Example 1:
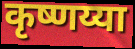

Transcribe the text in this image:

कृष्णय्या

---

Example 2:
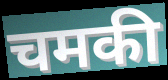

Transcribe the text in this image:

चमकी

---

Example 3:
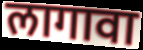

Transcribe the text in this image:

लागावा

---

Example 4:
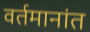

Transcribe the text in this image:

वर्तमानांत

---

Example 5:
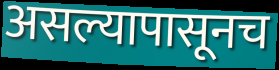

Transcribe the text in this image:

असल्यापासूनच